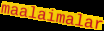
maalaimalar